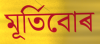
মূৰ্তিবোৰ